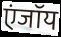
एंजॉय